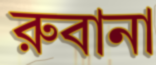
রুবানা